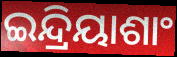
ଇନ୍ଦ୍ରିୟାଶାଂ